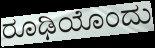
ರೂಢಿಯೊಂದು